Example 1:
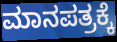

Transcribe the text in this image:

ಮಾನಪತ್ರಕ್ಕೆ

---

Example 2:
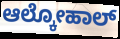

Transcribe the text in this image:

ಆಲ್ಕೋಹಾಲ್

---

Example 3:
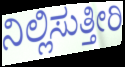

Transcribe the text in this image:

ನಿಲ್ಲಿಸುತ್ತೀರಿ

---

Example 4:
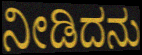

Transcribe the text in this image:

ನೀಡಿದನು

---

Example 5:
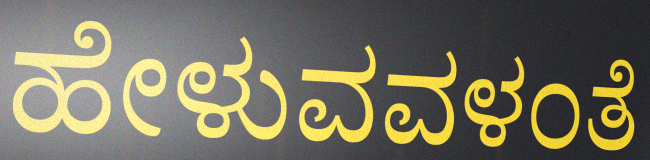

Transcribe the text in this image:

ಹೇಳುವವಳಂತೆ